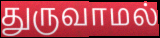
துருவாமல்